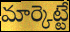
మార్కెట్టే